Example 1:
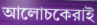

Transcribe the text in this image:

আলোচকেরাই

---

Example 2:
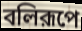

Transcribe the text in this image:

বলিরূপে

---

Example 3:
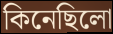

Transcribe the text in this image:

কিনেছিলো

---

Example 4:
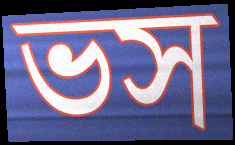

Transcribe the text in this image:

ভস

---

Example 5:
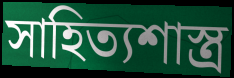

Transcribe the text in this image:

সাহিত্যশাস্ত্র